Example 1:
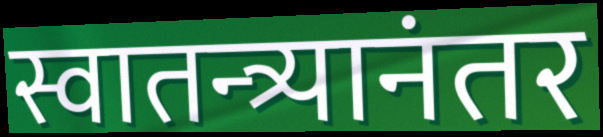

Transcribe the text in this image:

स्वातन्त्र्यानंतर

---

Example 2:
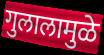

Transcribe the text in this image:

गुलालामुळे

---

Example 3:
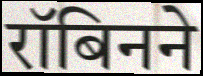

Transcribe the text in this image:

रॉबिनने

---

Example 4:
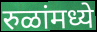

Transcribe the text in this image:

रुळांमध्ये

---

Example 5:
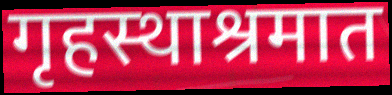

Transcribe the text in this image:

गृहस्थाश्रमात